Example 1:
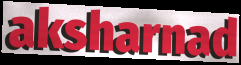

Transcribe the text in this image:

aksharnad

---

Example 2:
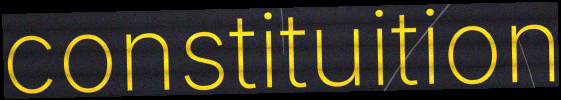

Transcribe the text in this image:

constituition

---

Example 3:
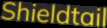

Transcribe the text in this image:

Shieldtail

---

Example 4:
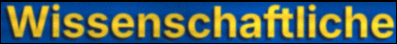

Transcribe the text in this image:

Wissenschaftliche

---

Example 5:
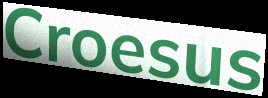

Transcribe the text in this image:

Croesus